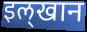
इल्खान